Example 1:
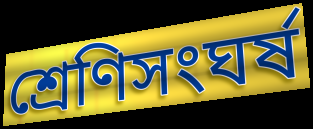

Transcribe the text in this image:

শ্রেণিসংঘর্ষ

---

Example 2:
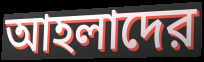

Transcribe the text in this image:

আহলাদের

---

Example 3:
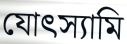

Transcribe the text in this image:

যোৎস্যামি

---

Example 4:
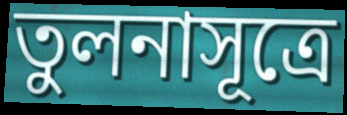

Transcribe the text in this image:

তুলনাসূত্রে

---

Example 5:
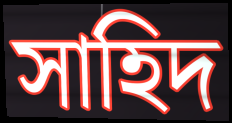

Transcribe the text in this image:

সাহিদ